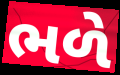
ભળે